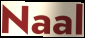
Naal